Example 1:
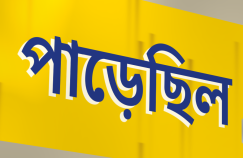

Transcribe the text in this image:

পাড়েছিল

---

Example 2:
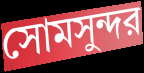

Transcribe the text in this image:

সোমসুন্দর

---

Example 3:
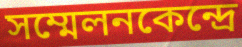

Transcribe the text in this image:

সম্মেলনকেন্দ্রে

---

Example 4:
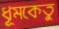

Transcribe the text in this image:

ধূমকেতু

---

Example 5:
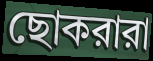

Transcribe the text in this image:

ছোকরারা